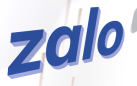
zalo